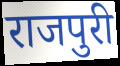
राजपुरी